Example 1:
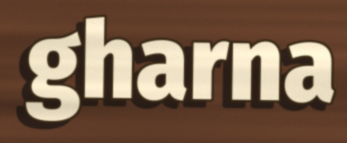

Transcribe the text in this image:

gharna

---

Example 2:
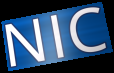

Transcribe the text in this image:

NIC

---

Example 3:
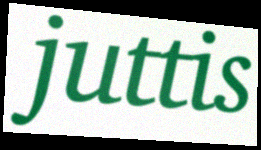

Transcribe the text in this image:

juttis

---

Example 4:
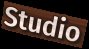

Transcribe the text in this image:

Studio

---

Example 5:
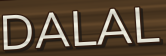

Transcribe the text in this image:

DALAL